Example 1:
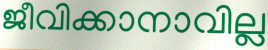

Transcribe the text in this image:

ജീവിക്കാനാവില്ല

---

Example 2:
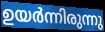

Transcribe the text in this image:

ഉയർന്നിരുന്നു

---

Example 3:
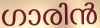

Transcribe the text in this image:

ഗാരിൻ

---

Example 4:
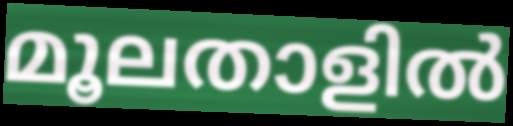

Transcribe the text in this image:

മൂലതാളിൽ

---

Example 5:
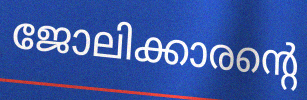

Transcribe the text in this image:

ജോലിക്കാരന്റെ